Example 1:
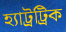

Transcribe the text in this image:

হ্যাট্রট্রিক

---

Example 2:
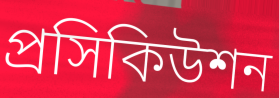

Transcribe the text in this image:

প্রসিকিউশন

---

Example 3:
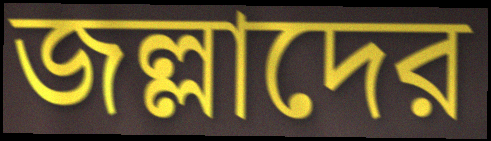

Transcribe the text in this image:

জল্লাদের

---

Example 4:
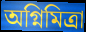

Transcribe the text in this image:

অগ্নিমিত্রা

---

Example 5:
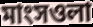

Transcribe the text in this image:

মাংসওলা